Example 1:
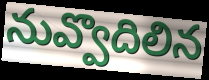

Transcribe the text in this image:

నువ్వొదిలిన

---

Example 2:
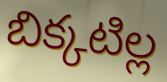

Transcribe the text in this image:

బిక్కటిల్ల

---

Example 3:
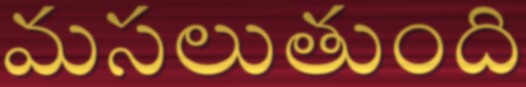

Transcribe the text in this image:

మసలుతుంది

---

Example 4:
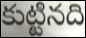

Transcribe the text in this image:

కుట్టినది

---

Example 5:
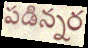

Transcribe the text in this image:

పడిన్నర